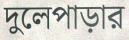
দুলেপাড়ার